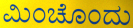
ಮಿಂಚೊಂದು